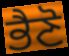
ਭੈਣੋ